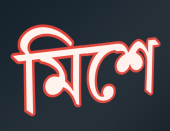
মিশে